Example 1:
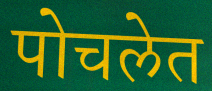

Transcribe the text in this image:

पोचलेत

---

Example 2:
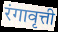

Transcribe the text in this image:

रंगावृत्ती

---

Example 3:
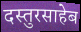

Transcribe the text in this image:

दस्तुरसाहेब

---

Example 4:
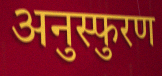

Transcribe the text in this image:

अनुस्फुरण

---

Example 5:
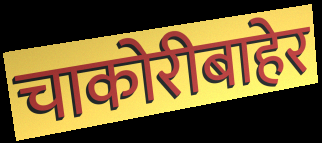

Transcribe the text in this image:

चाकोरीबाहेर